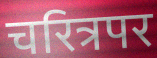
चरित्रपर